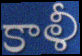
కాళీ